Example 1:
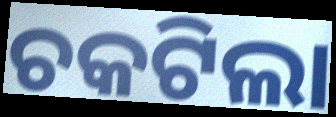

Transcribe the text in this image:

ଚକଟିଲା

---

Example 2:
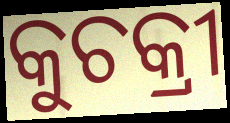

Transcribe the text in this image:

କୁଚକ୍ରୀ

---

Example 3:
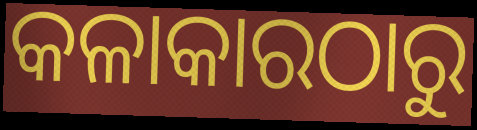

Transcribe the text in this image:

କଳାକାରଠାରୁ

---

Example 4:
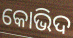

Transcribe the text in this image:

କୋଭିଦ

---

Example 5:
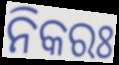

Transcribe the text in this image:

ନିକରଃ